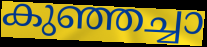
കുഞ്ഞച്ചാ